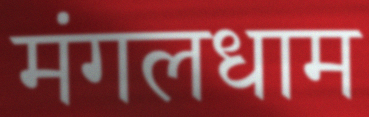
मंगलधाम